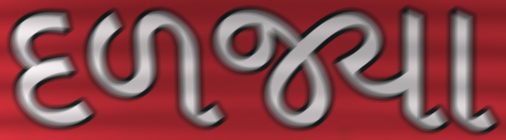
દળજ્યા